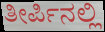
ತೀರ್ಪಿನಲ್ಲಿ